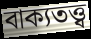
বাক্যতত্ত্ব